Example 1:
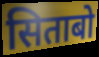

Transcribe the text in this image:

सिताबो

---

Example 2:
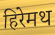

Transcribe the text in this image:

हिरेमथ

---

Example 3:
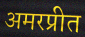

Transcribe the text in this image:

अमरप्रीत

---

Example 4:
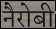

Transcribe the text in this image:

नैरोबी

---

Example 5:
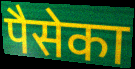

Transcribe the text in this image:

पैसेका